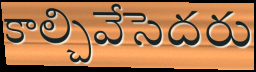
కాల్చివేసెదరు